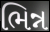
ભિન્ન